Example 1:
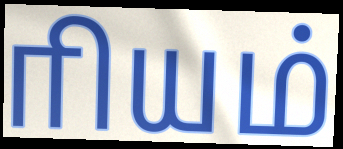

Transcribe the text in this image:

ரியம்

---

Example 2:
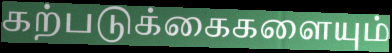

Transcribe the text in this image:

கற்படுக்கைகளையும்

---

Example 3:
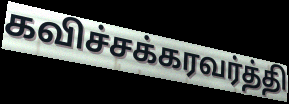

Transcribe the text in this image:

கவிச்சக்கரவர்த்தி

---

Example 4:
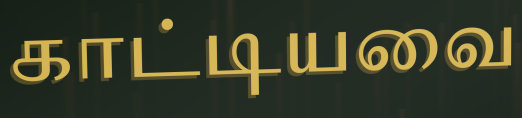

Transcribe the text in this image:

காட்டியவை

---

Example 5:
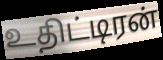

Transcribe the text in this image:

உதிட்டிரன்